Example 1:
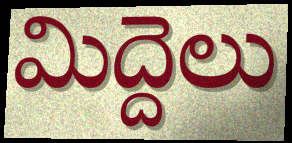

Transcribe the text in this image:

మిద్దెలు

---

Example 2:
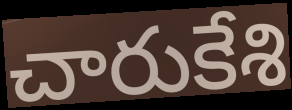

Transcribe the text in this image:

చారుకేశి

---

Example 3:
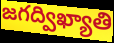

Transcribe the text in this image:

జగద్విఖ్యాతి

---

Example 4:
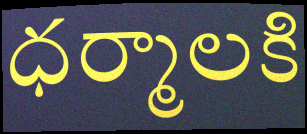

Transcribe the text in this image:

ధర్మాలకి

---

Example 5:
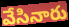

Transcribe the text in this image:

వేసినారు